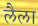
लैला